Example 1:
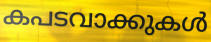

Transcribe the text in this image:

കപടവാക്കുകൾ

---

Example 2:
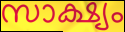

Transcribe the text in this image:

സാക്ഷ്യം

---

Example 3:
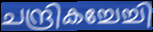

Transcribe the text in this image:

ചന്ദ്രികച്ചേച്ചി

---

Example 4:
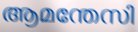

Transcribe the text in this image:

ആമന്തേസി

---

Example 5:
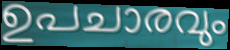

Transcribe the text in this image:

ഉപചാരവും